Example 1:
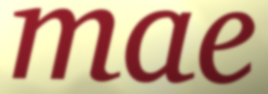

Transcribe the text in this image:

mae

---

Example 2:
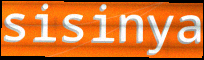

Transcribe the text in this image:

sisinya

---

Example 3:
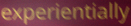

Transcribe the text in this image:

experientially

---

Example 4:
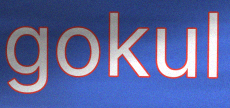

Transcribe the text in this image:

gokul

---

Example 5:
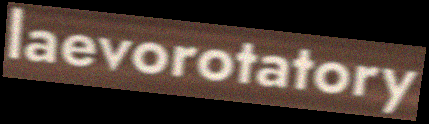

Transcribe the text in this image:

laevorotatory